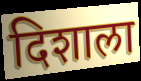
दिशाला